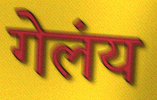
गेलंय